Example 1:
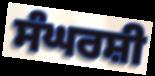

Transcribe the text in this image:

ਸੰਘਰਸ਼ੀ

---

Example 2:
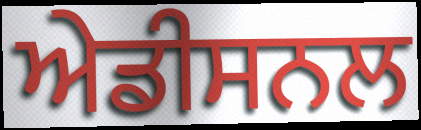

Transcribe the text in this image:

ਅੇਡੀਸਨਲ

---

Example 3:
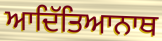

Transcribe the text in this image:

ਆਦਿੱਤਿਆਨਾਥ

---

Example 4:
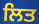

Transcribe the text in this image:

ਲਿਤ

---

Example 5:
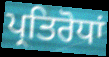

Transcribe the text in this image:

ਪ੍ਰਤਿਰੋਧਾਂ